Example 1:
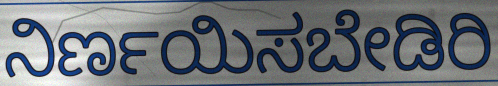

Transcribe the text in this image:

ನಿರ್ಣಯಿಸಬೇಡಿರಿ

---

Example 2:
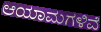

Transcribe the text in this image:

ಆಯಾಮಗಳಿವೆ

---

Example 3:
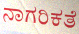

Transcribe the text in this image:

ನಾಗರಿಕತೆ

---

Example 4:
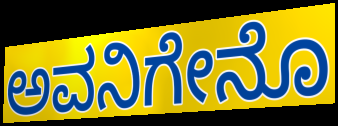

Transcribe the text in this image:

ಅವನಿಗೇನೊ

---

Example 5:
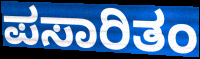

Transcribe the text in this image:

ಪಸಾರಿತಂ